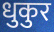
धुकुर